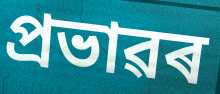
প্ৰভাৱৰ